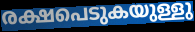
രക്ഷപെടുകയുള്ളു